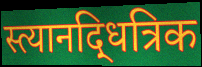
स्त्यानद्धित्रिक